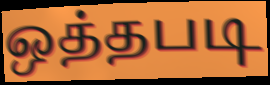
ஒத்தபடி